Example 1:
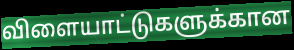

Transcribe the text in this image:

விளையாட்டுகளுக்கான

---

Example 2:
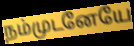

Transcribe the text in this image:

நம்முடனேயே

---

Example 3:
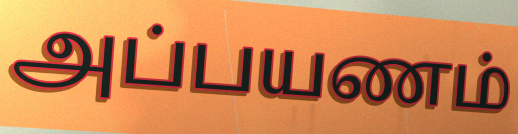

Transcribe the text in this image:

அப்பயணம்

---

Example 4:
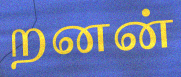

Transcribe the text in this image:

றனன்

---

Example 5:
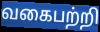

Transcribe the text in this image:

வகைபற்றி